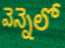
వెన్నెలో